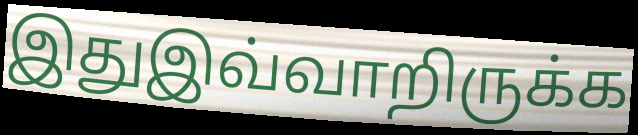
இதுஇவ்வாறிருக்க